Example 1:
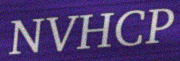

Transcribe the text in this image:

NVHCP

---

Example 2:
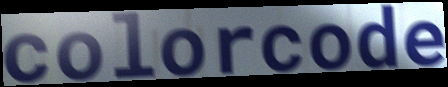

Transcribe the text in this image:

colorcode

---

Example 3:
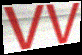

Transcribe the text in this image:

vv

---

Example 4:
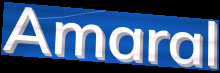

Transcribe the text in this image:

Amaral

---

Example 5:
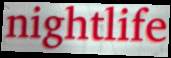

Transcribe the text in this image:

nightlife